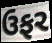
ઉફર